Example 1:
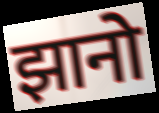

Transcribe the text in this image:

झानो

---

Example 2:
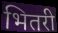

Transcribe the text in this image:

भितरी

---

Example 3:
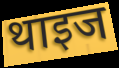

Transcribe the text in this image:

थाइज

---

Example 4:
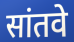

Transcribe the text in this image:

सांतवे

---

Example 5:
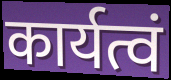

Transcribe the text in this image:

कार्यत्वं